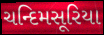
ચન્દિમસૂરિયા